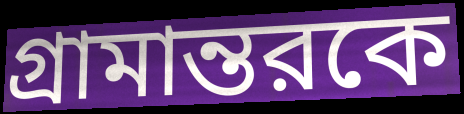
গ্রামান্তরকে